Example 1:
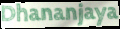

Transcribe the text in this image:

Dhananjaya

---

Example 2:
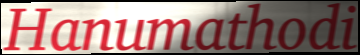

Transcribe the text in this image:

Hanumathodi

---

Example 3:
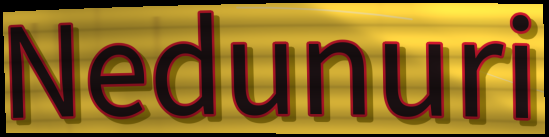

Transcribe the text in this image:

Nedunuri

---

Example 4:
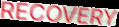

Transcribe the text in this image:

RECOVERY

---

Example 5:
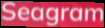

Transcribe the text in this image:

Seagram